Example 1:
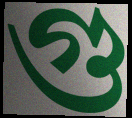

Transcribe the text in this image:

গু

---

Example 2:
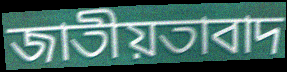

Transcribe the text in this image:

জাতীয়তাবাদ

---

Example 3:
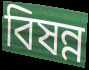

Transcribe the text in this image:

বিষন্ন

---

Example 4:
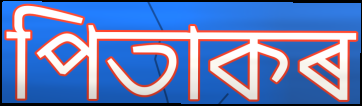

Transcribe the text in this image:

পিতাকৰ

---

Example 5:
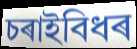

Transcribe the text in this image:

চৰাইবিধৰ